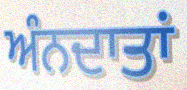
ਅੰਨਦਾਤਾਂ